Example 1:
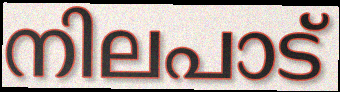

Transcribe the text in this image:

നിലപാട്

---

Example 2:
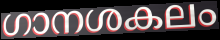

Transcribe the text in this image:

ഗാനശകലം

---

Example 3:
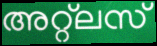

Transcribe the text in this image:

അറ്റ്ലസ്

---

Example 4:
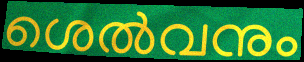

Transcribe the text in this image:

ശെൽവനും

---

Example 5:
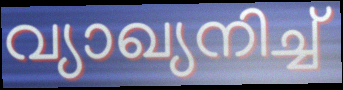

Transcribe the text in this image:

വ്യാഖ്യനിച്ച്